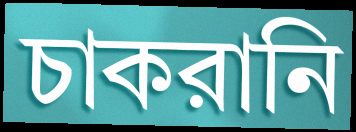
চাকরানি